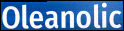
Oleanolic